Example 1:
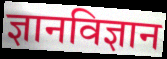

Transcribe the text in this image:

ज्ञानविज्ञान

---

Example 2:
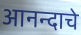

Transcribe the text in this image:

आनन्दाचे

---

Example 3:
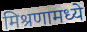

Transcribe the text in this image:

मिश्रणामध्ये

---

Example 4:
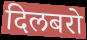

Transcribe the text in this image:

दिलबरो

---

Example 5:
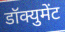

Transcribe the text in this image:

डॉक्युमेंट